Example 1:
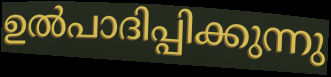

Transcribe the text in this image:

ഉൽപാദിപ്പിക്കുന്നു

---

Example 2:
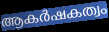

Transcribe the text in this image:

ആകർഷകത്വം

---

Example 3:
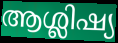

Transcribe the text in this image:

ആശ്ലിഷ്യ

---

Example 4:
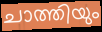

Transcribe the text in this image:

ചാത്തിയും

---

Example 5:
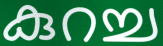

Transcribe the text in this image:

കുറച്ച